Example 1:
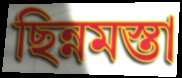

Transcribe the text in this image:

ছিন্নমস্তা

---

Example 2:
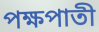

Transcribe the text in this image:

পক্ষপাতী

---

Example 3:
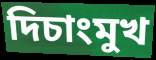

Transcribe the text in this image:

দিচাংমুখ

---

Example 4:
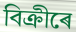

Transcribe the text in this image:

বিক্ৰীৰে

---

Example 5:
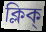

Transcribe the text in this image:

ক্লিক্